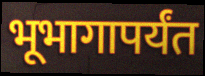
भूभागापर्यंत